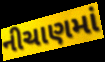
નીચાણમાં